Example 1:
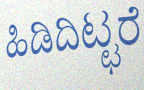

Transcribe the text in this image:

ಹಿಡಿದಿಟ್ಟರೆ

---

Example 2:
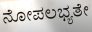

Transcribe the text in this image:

ನೋಪಲಭ್ಯತೇ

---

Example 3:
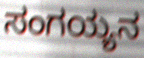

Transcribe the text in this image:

ಸಂಗಯ್ಯನ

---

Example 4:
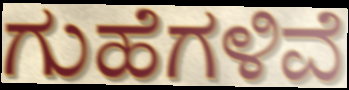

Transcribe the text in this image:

ಗುಹೆಗಳಿವೆ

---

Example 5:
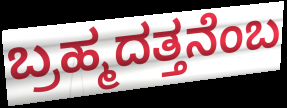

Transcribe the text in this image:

ಬ್ರಹ್ಮದತ್ತನೆಂಬ